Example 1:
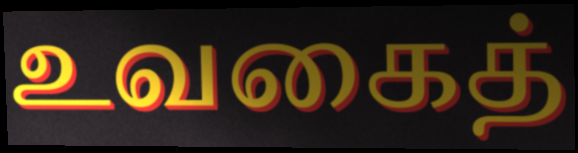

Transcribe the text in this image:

உவகைத்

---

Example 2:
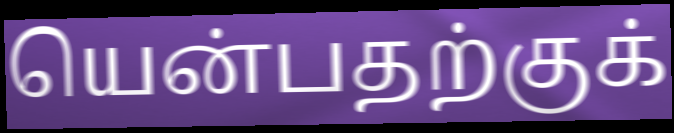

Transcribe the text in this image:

யென்பதற்குக்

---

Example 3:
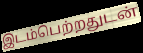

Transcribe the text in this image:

இடம்பெற்றதுடன்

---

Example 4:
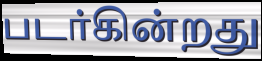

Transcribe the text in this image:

படர்கின்றது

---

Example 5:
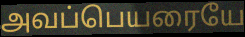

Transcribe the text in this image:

அவப்பெயரையே